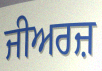
ਜੀਅਰਜ਼